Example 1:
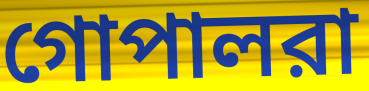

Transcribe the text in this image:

গোপালরা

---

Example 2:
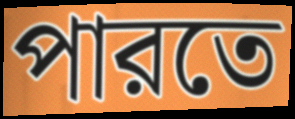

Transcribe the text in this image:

পারতে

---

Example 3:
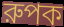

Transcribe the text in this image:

রুপক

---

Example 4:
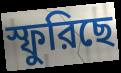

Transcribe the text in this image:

স্ফুরিছে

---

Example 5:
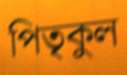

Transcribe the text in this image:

পিতৃকুল